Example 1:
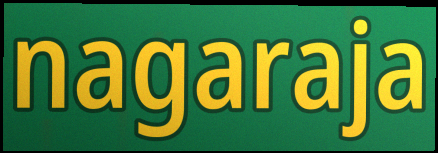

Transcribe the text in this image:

nagaraja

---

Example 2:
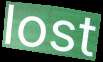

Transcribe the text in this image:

lost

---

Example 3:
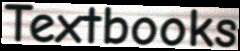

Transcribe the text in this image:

Textbooks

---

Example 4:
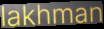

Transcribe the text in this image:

lakhman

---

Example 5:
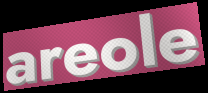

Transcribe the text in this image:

areole